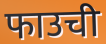
फाउची